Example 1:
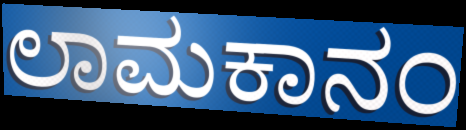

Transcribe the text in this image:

ಲಾಮಕಾನಂ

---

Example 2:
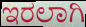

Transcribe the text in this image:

ಇರಲಾಗಿ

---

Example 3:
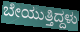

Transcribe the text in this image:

ಬೇಯುತ್ತಿದ್ದಳು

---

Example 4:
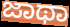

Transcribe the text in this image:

ಜಾಥಾ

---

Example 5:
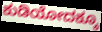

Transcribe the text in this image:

ಕುಡಿಯೋದಕ್ಕೂ